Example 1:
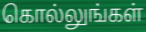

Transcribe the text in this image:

கொல்லுங்கள்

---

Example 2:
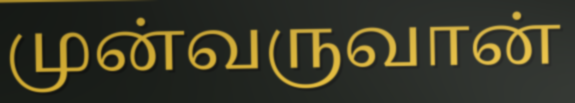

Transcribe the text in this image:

முன்வருவான்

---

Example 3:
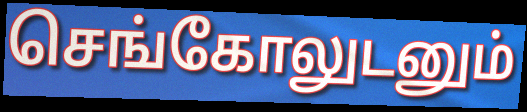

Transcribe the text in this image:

செங்கோலுடனும்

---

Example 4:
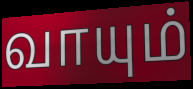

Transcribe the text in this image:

வாயும்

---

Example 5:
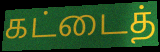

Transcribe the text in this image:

கட்டைத்